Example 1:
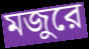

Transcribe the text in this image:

মজুরে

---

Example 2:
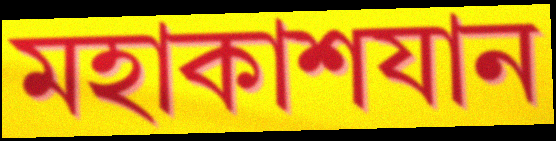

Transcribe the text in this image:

মহাকাশযান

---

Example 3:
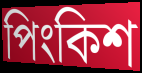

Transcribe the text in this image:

পিংকিশ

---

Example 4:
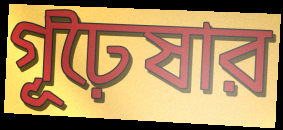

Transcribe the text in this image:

গূঢ়ৈষার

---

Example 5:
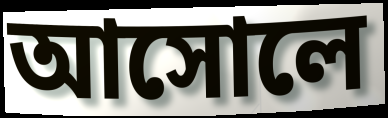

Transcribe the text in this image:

আসোলে